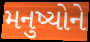
મનુષ્યોને